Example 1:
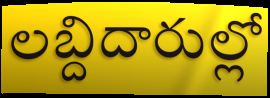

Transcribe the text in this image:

లబ్దిదారుల్లో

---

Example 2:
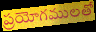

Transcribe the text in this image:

ప్రయోగములతో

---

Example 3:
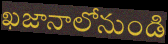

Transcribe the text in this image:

ఖజానాలోనుండి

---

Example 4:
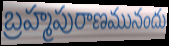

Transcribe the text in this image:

బ్రహ్మపురాణమునందు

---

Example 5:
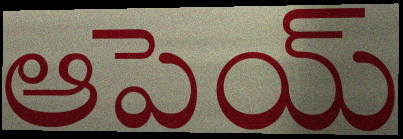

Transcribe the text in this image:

ఆపెయ్